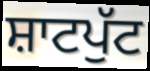
ਸ਼ਾਟਪੁੱਟ